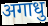
अगाधु